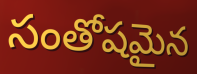
సంతోషమైన